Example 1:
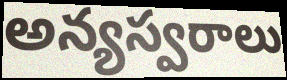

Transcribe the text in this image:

అన్యస్వరాలు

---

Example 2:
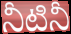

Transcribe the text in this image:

నీటినీ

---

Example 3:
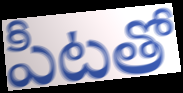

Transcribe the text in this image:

పీటతో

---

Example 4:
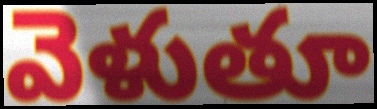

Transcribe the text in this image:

వెళుతూ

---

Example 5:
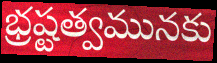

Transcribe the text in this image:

భ్రష్టత్వమునకు